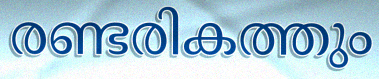
രണ്ടരികത്തും